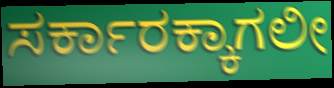
ಸರ್ಕಾರಕ್ಕಾಗಲೀ